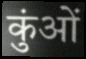
कुंओं